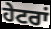
ਹੇਟਰਾਂ